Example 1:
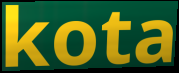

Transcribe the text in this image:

kota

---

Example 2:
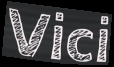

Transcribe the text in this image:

Vici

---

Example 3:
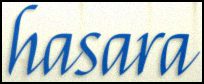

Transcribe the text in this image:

hasara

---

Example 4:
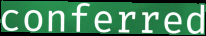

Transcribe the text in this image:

conferred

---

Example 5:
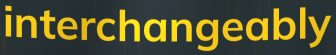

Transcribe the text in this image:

interchangeably